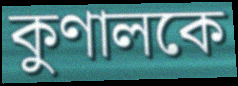
কুণালকে